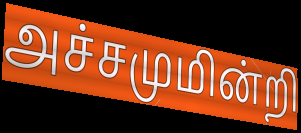
அச்சமுமின்றி